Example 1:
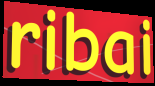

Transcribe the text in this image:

ribai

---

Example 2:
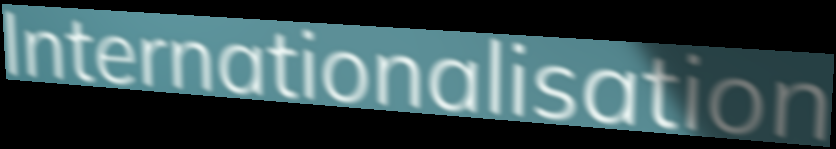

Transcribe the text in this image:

Internationalisation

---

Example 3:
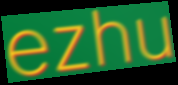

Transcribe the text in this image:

ezhu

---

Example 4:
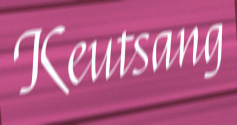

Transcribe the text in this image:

Keutsang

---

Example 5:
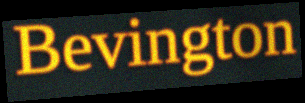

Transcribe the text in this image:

Bevington